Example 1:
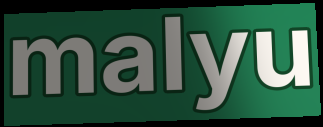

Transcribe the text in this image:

malyu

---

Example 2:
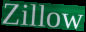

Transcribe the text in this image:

Zillow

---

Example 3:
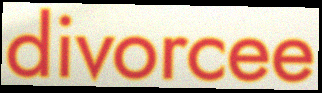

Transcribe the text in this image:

divorcee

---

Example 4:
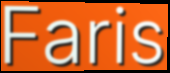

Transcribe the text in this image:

Faris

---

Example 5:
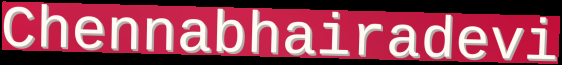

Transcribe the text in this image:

Chennabhairadevi